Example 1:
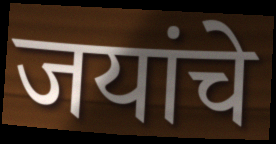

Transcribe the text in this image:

जयांचे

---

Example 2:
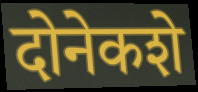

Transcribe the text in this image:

दोनेकशे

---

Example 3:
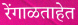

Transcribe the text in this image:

रेंगाळताहेत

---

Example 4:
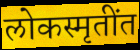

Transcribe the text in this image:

लोकस्मृतींत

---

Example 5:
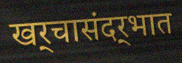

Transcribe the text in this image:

खर्चासंदर्भात